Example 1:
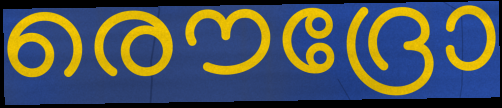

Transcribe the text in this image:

രൌദ്രോ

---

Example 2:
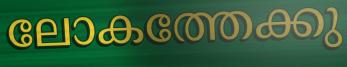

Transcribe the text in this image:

ലോകത്തേക്കു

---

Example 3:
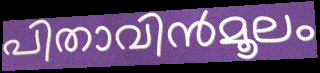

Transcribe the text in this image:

പിതാവിൻമൂലം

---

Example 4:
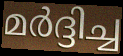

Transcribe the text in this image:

മർദ്ദിച്ച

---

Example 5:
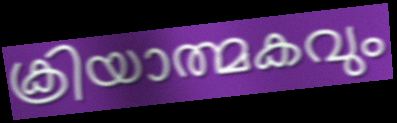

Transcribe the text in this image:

ക്രിയാത്മകവും